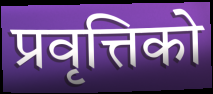
प्रवृत्तिको